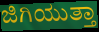
ಜಿಗಿಯುತ್ತಾ